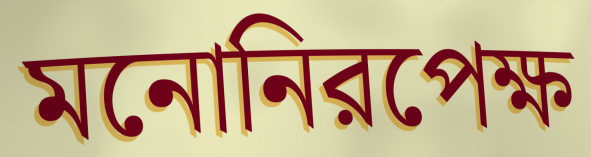
মনোনিরপেক্ষ